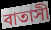
বাতাসী